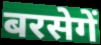
बरसेगें